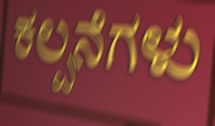
ಕಲ್ಪನೆಗಳು